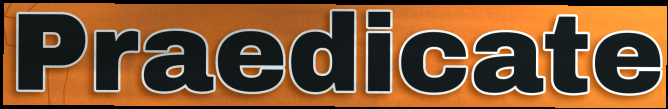
Praedicate